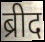
ब्रीद